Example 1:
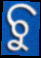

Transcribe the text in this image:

ଚୁ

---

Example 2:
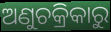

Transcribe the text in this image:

ଅଣୁଚକ୍ରିକାରୁ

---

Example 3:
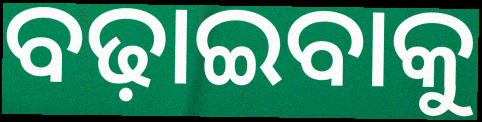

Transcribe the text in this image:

ବଢ଼ାଇବାକୁ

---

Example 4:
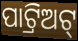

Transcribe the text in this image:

ପାଟ୍ରିଅଟ୍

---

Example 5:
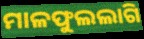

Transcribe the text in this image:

ମାଳଫୁଲଲାଗି